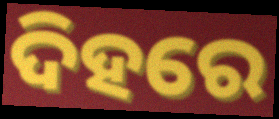
ଦିହରେ